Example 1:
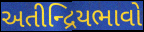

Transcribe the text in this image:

અતીન્દ્રિયભાવો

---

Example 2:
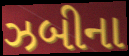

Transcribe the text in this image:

ઝબીના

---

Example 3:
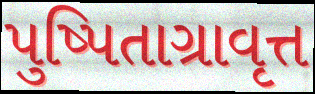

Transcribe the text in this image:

પુષ્પિતાગ્રાવૃત્ત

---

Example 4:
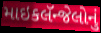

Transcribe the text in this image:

માઇકલૅન્જેલોનું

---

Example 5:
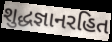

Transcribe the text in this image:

શુદ્ધજ્ઞાનરહિત